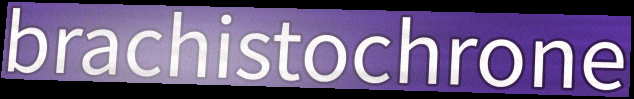
brachistochrone